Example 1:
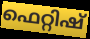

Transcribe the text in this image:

ഫെറ്റിഷ്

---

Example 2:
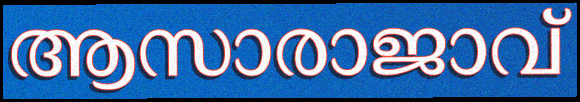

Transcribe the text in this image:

ആസാരാജാവ്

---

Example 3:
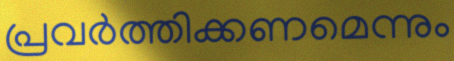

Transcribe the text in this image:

പ്രവർത്തിക്കണമെന്നും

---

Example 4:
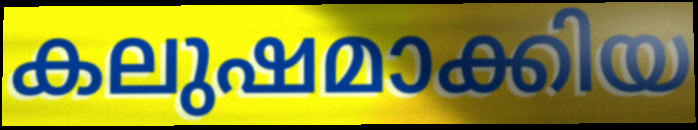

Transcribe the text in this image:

കലുഷമാക്കിയ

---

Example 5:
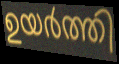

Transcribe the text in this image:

ഉയർത്തി